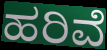
ಹರಿವೆ